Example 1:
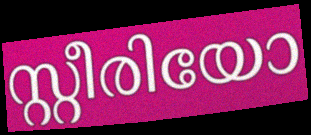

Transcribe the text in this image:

സ്റ്റീരിയോ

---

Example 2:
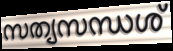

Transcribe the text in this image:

സത്യസന്ധശ്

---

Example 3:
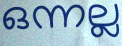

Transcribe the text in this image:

ഒന്നല്ല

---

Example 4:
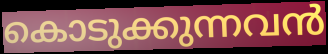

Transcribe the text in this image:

കൊടുക്കുന്നവൻ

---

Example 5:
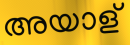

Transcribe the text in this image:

അയാള്